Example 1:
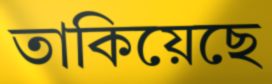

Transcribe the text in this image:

তাকিয়েছে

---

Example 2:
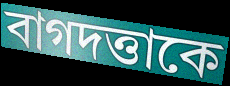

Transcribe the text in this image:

বাগদত্তাকে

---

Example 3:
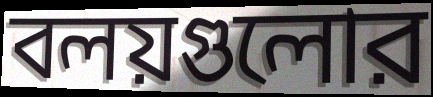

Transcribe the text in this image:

বলয়গুলোর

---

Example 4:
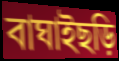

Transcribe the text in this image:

বাঘাইছড়ি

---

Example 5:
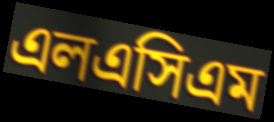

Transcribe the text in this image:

এলএসিএম